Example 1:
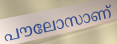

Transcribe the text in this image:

പൗലോസാണ്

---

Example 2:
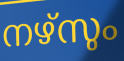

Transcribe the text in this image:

നഴ്സും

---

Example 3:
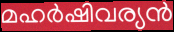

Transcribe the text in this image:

മഹർഷിവര്യൻ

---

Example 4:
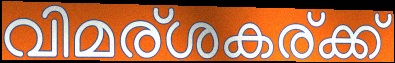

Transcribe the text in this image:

വിമര്ശകര്ക്ക്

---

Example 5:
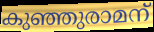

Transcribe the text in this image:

കുഞ്ഞുരാമന്